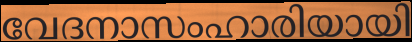
വേദനാസംഹാരിയായി